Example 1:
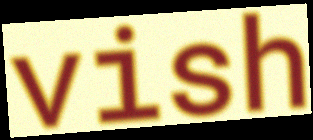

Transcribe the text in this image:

vish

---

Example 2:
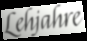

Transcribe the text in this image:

Lehjahre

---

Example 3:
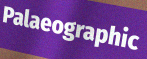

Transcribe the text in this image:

Palaeographic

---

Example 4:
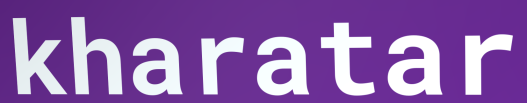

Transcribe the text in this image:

kharatar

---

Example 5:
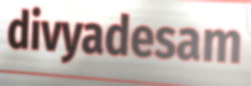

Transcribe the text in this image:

divyadesam